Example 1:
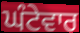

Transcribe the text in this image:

ਘੰਟੇਵਾਰ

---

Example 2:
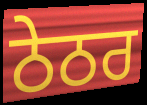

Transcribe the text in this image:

ਠੇਠਰ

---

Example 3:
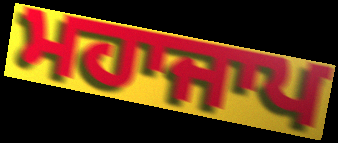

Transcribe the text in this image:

ਮਹਾਜਾਪ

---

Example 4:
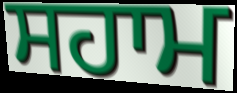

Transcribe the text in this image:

ਸਹਾਮ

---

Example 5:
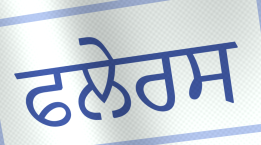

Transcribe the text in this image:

ਫਲੇਰਸ